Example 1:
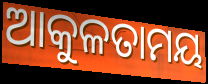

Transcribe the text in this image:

ଆକୁଳତାମୟ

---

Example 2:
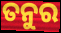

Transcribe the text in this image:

ତନୁର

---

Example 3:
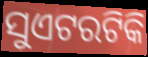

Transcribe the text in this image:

ସୁଏଟରଟିକି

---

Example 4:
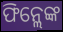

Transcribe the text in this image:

ଫିନ୍ଲେଙ୍କ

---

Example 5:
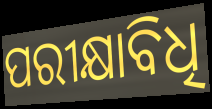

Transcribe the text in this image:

ପରୀକ୍ଷାବିଧି